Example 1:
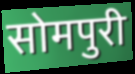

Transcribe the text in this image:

सोमपुरी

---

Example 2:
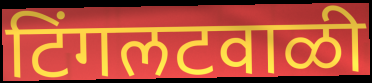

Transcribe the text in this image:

टिंगलटवाळी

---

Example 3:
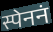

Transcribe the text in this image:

स्पेननं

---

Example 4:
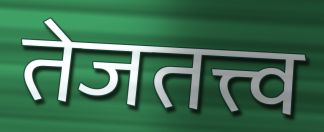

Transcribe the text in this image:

तेजतत्त्व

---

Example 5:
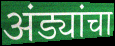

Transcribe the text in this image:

अंड्यांचा